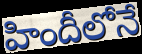
హిందీలోనే